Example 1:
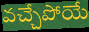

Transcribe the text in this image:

వచ్చేపోయే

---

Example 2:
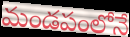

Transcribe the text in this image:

మండపంలోనే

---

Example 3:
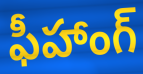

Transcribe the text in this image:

ఫీహాంగ్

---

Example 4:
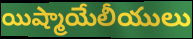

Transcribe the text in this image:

యిష్మాయేలీయులు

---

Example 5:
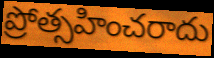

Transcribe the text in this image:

ప్రోత్సహించరాదు